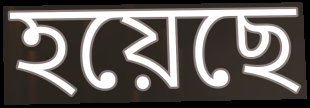
হয়েছে